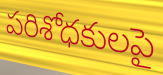
పరిశోధకులపై